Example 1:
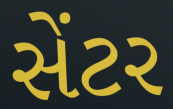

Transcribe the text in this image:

સેંટર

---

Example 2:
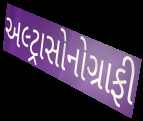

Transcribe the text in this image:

અલ્ટ્રાસોનોગ્રાફી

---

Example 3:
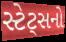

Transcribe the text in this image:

સ્ટેટ્સનો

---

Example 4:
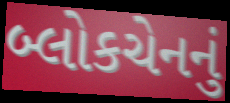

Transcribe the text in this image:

બ્લોકચેનનું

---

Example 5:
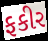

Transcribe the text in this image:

ફકીર